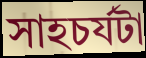
সাহচর্যটা